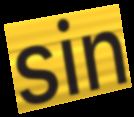
sin